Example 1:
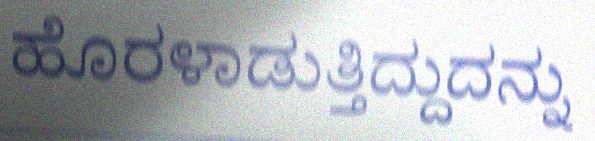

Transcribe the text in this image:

ಹೊರಳಾಡುತ್ತಿದ್ದುದನ್ನು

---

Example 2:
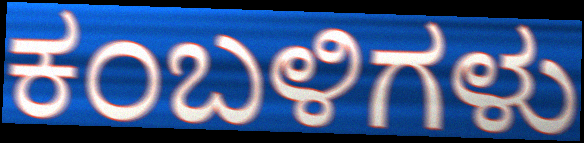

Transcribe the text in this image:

ಕಂಬಳಿಗಳು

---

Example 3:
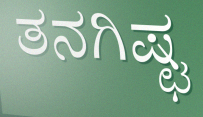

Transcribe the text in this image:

ತನಗಿಷ್ಟ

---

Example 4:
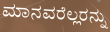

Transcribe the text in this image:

ಮಾನವರೆಲ್ಲರನ್ನು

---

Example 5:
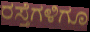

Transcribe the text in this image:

ರಸ್ತೆಗಳಿಗೂ